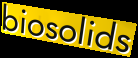
biosolids